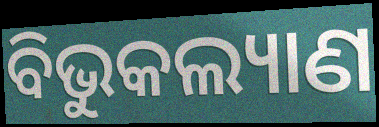
ବିଭୁକଲ୍ୟାଣ